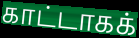
காட்டாகக்